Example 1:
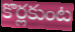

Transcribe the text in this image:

కొర్లకుంట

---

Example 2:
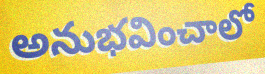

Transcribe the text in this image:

అనుభవించాలో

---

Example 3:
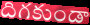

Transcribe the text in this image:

దిగకుండా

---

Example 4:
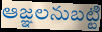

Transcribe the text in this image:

ఆజ్ఞలనుబట్టి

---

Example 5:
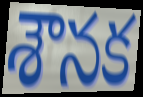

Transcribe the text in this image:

శౌనక